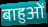
बाहुओं